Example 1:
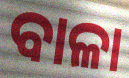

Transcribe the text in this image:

ବାଳା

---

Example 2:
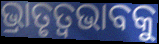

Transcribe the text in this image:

ଭ୍ରାତୃତ୍ୱଭାବକୁ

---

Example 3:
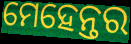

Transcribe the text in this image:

ମେହେନ୍ତର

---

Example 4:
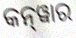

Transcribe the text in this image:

କନ୍‍ୱାର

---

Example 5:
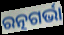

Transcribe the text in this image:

ରତ୍ନଗର୍ଭା